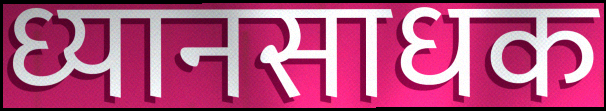
ध्यानसाधक